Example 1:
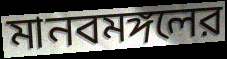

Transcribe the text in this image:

মানবমঙ্গলের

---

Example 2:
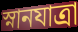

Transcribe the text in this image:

স্নানযাত্রা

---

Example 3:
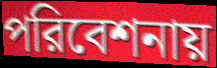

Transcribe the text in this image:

পরিবেশনায়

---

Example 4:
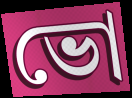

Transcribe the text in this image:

ভো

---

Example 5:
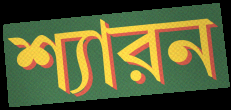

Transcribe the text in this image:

শ্যারন